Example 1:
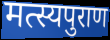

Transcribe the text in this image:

मत्स्यपुराण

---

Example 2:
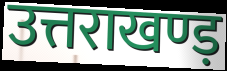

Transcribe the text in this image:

उत्तराखण्ड़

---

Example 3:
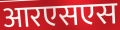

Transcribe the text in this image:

आरएसएस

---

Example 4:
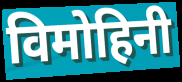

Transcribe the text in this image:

विमोहिनी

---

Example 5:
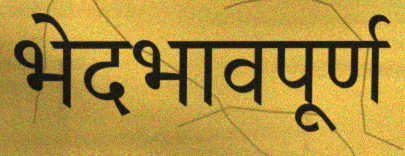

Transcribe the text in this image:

भेदभावपूर्ण